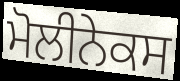
ਮੋਲੀਨੇਕਸ